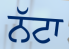
ਨੱਟਾ